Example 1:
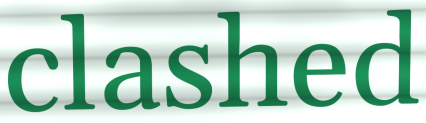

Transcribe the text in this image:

clashed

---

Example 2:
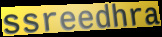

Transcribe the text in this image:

ssreedhra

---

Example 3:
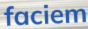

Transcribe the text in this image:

faciem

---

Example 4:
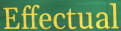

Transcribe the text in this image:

Effectual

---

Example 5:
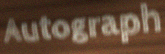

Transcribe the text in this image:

Autograph